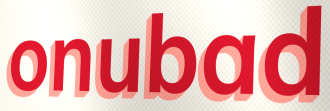
onubad